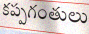
కప్పగంతులు